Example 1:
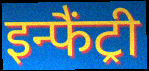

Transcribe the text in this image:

इन्फैंट्री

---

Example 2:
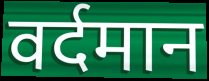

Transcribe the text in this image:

वर्दमान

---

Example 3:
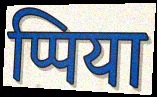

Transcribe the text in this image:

प्पिया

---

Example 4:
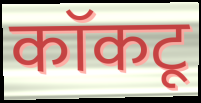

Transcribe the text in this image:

कॉकटू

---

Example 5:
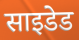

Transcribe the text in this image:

साइडेड